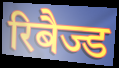
रिबैज्ड